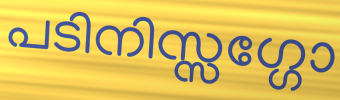
പടിനിസ്സഗ്ഗോ